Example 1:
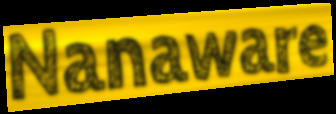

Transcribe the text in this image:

Nanaware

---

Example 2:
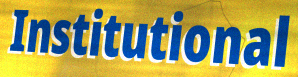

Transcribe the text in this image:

Institutional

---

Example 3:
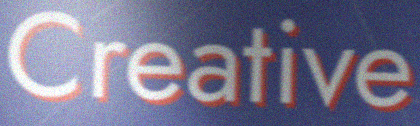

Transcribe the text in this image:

Creative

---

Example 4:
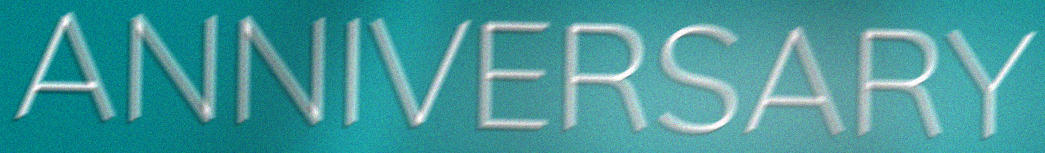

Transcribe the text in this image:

ANNIVERSARY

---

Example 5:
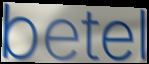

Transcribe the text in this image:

betel